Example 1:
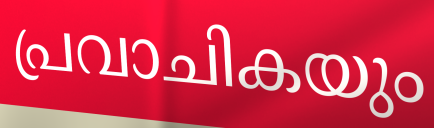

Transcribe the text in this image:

പ്രവാചികയും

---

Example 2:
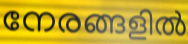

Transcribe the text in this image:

നേരങ്ങളിൽ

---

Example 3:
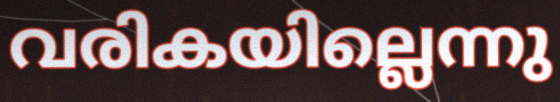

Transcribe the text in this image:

വരികയില്ലെന്നു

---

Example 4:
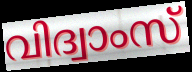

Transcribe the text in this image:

വിദ്വാംസ്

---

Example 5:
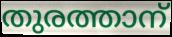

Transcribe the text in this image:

തുരത്താന്